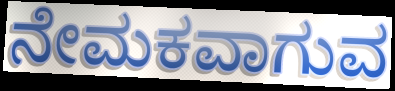
ನೇಮಕವಾಗುವ